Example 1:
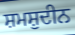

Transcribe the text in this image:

ਸ਼ਮਸ਼ੁਦੀਨ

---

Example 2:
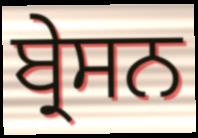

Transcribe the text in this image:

ਬ੍ਰੇਸਨ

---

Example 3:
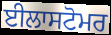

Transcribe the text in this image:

ਈਲਾਸਟੋਮਰ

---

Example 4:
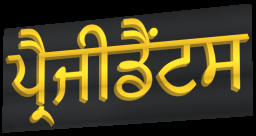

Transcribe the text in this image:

ਪ੍ਰੈਜੀਡੈਂਟਸ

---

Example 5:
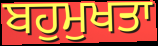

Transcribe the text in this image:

ਬਹੁਮੁਖਤਾ